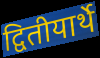
द्वितीयार्थे